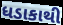
ધડાકાથી